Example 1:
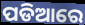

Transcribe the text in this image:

ପଡିଆରେ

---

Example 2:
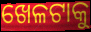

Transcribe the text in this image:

ଖେଳଟାକୁ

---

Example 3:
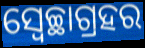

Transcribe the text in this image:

ସ୍ବେଚ୍ଛାଗ୍ରହର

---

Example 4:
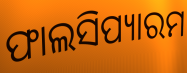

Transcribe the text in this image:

ଫାଲସିପ୍ୟାରମ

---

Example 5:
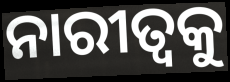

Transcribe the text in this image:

ନାରୀତ୍ୱକୁ